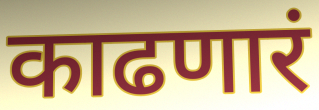
काढणारं